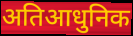
अतिआधुनिक